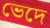
ভেদে